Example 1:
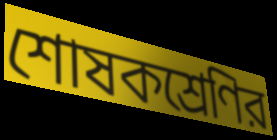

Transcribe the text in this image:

শোষকশ্রেণির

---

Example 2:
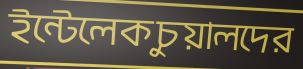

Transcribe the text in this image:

ইন্টেলেকচুয়ালদের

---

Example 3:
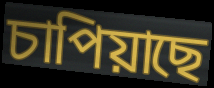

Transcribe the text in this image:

চাপিয়াছে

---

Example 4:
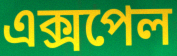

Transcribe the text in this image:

এক্সপেল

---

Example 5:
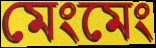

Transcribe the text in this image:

মেংমেং